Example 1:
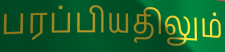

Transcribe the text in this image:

பரப்பியதிலும்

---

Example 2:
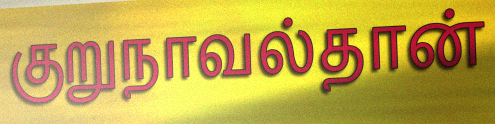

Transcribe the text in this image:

குறுநாவல்தான்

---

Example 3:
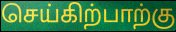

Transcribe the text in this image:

செய்கிற்பாற்கு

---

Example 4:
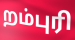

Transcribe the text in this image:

றம்புரி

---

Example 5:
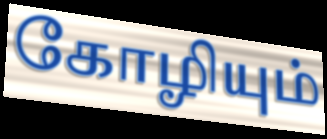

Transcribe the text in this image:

கோழியும்